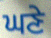
ਘਣੇ